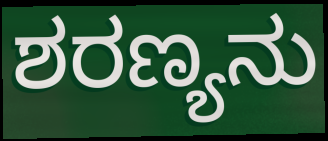
ಶರಣ್ಯನು